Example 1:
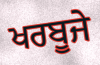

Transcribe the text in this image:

ਖਰਬੂਜੇ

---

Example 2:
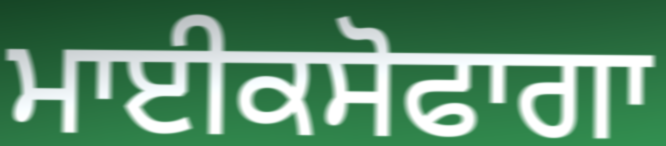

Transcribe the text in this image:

ਮਾਈਕਸੋਫਾਗਾ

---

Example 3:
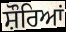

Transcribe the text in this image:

ਸ਼ੌਰਿਆਂ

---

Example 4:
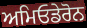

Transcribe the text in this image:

ਅਮਿਓਡੇਰੋਨ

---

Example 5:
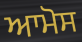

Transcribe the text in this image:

ਆਮੋਸ